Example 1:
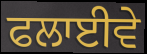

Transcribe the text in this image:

ਫਲਾਈਵੇ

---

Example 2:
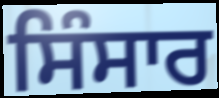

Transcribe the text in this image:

ਸਿੰਸਾਰ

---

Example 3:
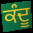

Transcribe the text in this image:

ਕੰਦੂ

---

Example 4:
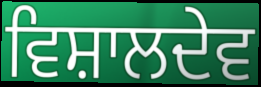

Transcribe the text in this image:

ਵਿਸ਼ਾਲਦੇਵ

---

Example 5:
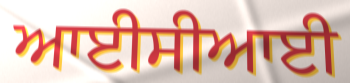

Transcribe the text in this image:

ਆਈਸੀਆਈ